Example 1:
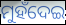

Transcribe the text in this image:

ମୁହଁଦେଇ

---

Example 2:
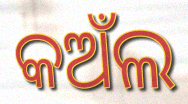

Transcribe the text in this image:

କଅଁଲ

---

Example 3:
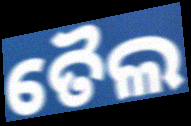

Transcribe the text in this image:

ତୈଲ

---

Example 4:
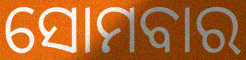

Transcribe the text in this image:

ସୋମବାର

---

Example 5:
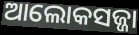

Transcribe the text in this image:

ଆଲୋକସଜ୍ଜା